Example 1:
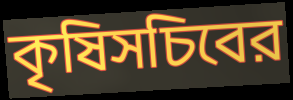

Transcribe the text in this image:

কৃষিসচিবের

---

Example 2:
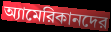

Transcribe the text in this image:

অ্যামেরিকানদের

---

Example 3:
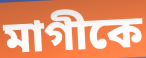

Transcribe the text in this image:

মাগীকে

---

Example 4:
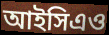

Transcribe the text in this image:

আইসিএও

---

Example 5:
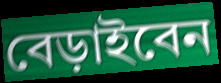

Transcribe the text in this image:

বেড়াইবেন